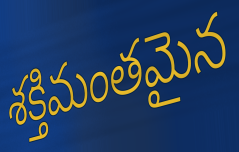
శక్తిమంతమైన